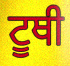
ਟੂਥੀ